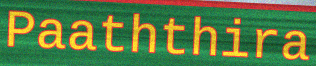
Paaththira